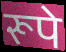
रूपे